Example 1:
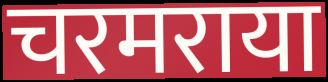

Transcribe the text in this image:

चरमराया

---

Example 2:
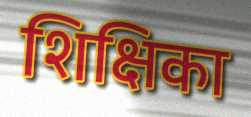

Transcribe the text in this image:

शिक्षिका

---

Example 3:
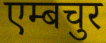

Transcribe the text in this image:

एम्बचुर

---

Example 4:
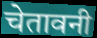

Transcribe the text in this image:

चेतावनी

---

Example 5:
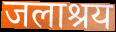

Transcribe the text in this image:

जलाश्रय